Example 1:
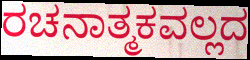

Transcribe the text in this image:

ರಚನಾತ್ಮಕವಲ್ಲದ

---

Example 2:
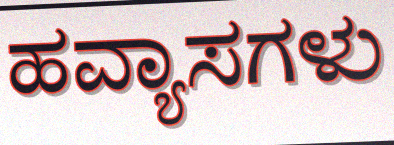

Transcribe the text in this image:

ಹವ್ಯಾಸಗಳು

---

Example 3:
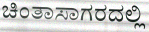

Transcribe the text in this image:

ಚಿಂತಾಸಾಗರದಲ್ಲಿ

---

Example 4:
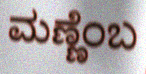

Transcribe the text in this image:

ಮಣ್ಣೆಂಬ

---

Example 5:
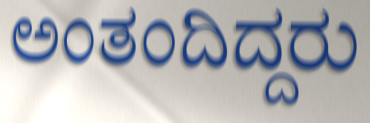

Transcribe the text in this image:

ಅಂತಂದಿದ್ದರು